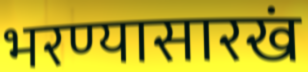
भरण्यासारखं